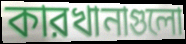
কারখানাগুলো